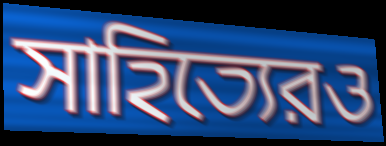
সাহিত্যেরও